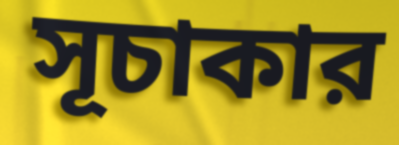
সূচাকার